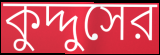
কুদ্দুসের